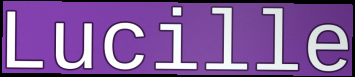
Lucille